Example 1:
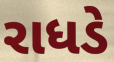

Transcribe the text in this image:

રાધડે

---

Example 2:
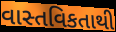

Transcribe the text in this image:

વાસ્તવિકતાથી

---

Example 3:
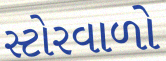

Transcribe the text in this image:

સ્ટોરવાળો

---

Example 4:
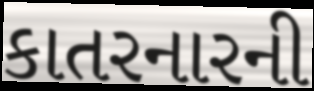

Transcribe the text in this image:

કાતરનારની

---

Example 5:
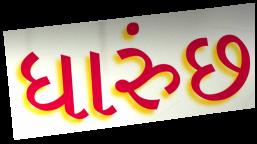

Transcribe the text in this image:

ધારુંછ